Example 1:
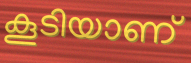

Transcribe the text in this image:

കൂടിയാണ്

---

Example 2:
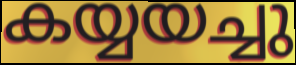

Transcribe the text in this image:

കയ്യയച്ചു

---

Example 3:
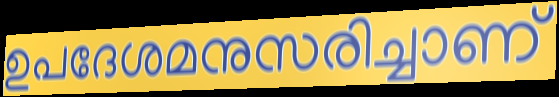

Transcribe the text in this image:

ഉപദേശമനുസരിച്ചാണ്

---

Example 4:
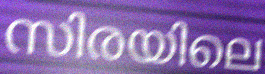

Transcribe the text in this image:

സിരയിലെ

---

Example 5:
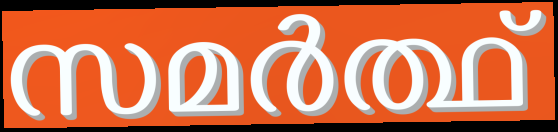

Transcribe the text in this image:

സമർത്ഥ്